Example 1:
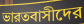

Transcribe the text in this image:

ভারতবাসীদের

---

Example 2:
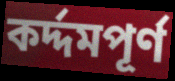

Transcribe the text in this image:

কর্দ্দমপূর্ণ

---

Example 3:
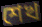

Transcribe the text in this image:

শেখ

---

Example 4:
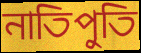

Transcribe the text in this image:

নাতিপুতি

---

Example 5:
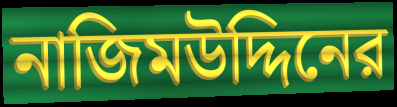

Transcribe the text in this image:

নাজিমউদ্দিনের